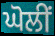
ਘੋਲੀਂ